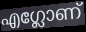
എഗ്ലോണ്